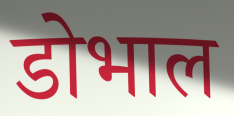
डोभाल